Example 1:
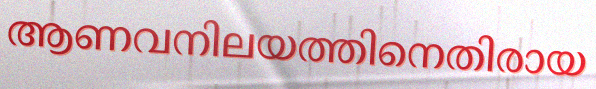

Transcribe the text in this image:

ആണവനിലയത്തിനെതിരായ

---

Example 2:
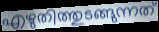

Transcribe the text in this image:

എഴുതിത്തുടങ്ങുന്നത്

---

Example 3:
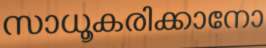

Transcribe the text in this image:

സാധൂകരിക്കാനോ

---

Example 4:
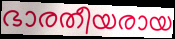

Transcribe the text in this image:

ഭാരതീയരായ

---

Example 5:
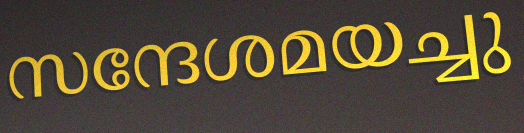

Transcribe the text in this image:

സന്ദേശമയച്ചു